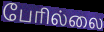
பேரில்லை